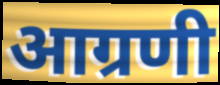
आग्रणी